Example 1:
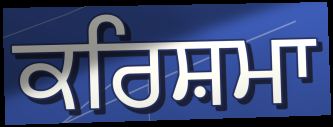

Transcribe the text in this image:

ਕਰਿਸ਼ਮਾ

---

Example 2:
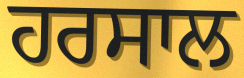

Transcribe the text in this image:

ਹਰਸਾਲ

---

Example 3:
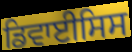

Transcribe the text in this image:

ਡਿਵਾਈਸਿਸ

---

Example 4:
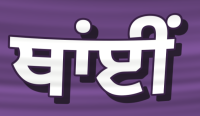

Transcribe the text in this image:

ਥਾਂਈਂ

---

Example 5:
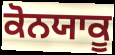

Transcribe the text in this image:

ਕੋਨਯਾਕੂ